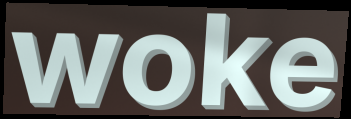
woke